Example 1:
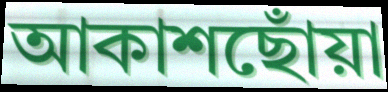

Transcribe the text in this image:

আকাশছোঁয়া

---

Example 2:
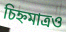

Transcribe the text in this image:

চিহ্নমাত্রও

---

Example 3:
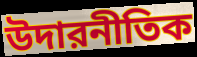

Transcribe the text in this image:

উদারনীতিক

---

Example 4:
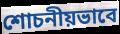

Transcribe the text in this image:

শোচনীয়ভাবে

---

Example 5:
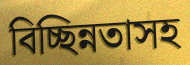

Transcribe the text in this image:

বিচ্ছিন্নতাসহ